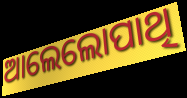
ଆଲେଲୋପାଥି